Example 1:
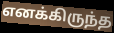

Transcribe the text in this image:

எனக்கிருந்த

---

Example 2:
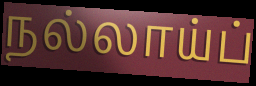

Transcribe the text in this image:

நல்லாய்ப்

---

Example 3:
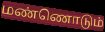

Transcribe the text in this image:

மண்ணொடும்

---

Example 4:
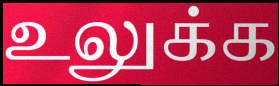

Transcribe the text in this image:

உலுக்க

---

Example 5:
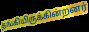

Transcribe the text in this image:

தங்கியிருக்கின்றனர்